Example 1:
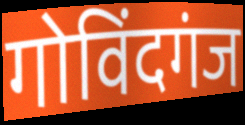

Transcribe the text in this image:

गोविंदगंज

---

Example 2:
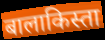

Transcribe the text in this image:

बालाकिस्ता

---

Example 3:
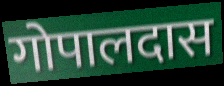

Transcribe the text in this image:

गोपालदास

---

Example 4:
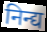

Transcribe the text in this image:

निन्द्य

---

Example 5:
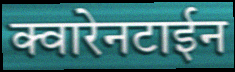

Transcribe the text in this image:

क्वारेनटाईन